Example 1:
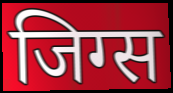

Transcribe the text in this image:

जिग्स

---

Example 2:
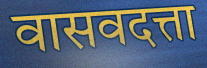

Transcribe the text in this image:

वासवदत्ता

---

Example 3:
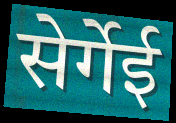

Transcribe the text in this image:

सेर्गेई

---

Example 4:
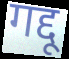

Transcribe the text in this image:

गद्दू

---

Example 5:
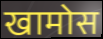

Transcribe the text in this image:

खामोस